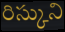
రిస్కుని